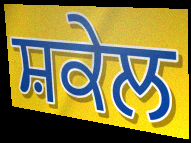
ਸ਼ਕੇਲ